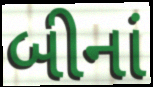
બીનાં